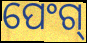
ପେଂଗ୍